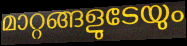
മാറ്റങ്ങളുടേയും